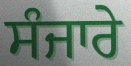
ਸੰਜਾਰੇ